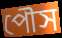
পৌস